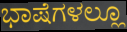
ಭಾಷೆಗಳಲ್ಲೂ